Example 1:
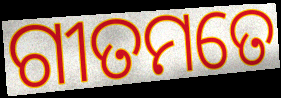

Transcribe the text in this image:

ଗୀତମତେ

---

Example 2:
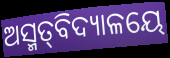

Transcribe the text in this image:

ଅସ୍ମତ୍‌ବିଦ୍ୟାଳୟେ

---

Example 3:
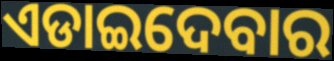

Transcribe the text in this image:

ଏଡାଇଦେବାର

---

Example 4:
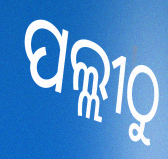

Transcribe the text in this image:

ପଲ୍ଲୀଠୁ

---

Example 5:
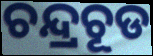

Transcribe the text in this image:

ଚନ୍ଦ୍ରଚୂଡ